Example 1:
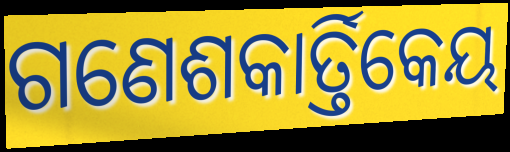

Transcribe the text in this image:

ଗଣେଶକାର୍ତ୍ତିକେୟ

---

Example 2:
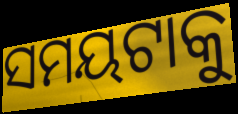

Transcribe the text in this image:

ସମୟଟାକୁ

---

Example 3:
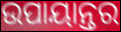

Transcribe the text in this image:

ଉପାୟାନ୍ତର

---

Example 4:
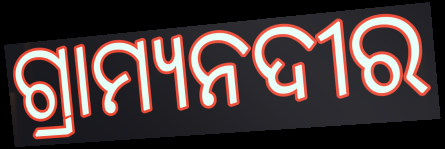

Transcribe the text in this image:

ଗ୍ରାମ୍ୟନଦୀର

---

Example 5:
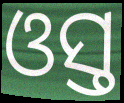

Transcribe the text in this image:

ଓସ୍ତ